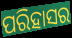
ପରିହାସର